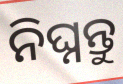
ନିଘ୍ନନ୍ତୁ